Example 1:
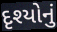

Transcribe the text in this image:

દૃશ્યોનું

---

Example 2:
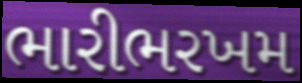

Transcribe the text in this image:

ભારીભરખમ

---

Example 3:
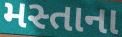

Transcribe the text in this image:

મસ્તાના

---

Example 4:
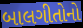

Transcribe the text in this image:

બાલગીતોનો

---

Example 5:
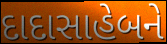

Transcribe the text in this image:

દાદાસાહેબને